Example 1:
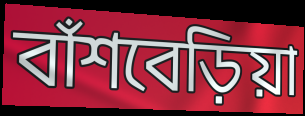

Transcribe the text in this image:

বাঁশবেড়িয়া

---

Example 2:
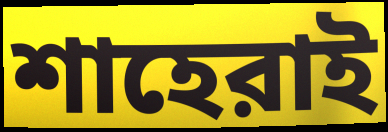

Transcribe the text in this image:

শাহেরাই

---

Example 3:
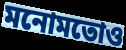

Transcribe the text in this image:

মনোমতোও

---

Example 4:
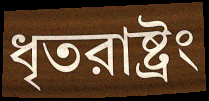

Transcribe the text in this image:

ধৃতরাষ্ট্রং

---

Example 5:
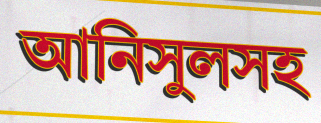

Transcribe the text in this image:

আনিসুলসহ